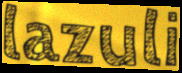
lazuli